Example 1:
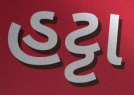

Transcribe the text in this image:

હટ્ટા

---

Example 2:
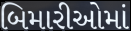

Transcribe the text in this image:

બિમારીઓમાં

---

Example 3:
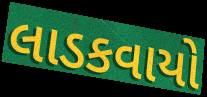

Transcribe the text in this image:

લાડકવાયો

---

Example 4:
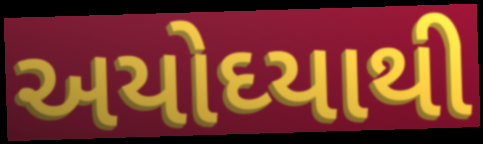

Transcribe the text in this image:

અયોઘ્યાથી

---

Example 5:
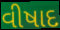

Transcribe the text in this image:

વીષાદ